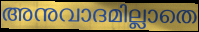
അനുവാദമില്ലാതെ